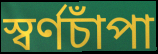
স্বর্ণচাঁপা